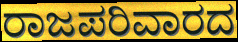
ರಾಜಪರಿವಾರದ